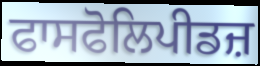
ਫਾਸਫੋਲਿਪੀਡਜ਼